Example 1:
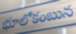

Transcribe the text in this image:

భూలోకంబున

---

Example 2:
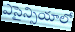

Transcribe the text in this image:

ఎసైన్సియాలో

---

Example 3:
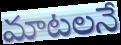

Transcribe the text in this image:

మాటలనే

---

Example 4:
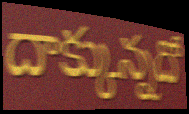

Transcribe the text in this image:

దాక్కున్నదో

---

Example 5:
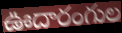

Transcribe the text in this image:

ఊదారంగుల